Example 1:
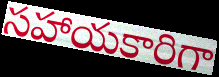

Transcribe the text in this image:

సహాయకారిగా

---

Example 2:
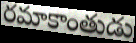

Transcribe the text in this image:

రమాకాంతుడు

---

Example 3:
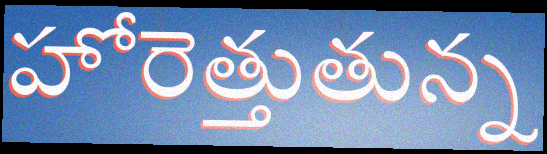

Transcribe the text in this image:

హోరెత్తుతున్న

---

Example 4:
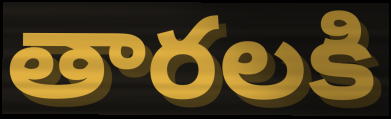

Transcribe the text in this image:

తారలకి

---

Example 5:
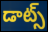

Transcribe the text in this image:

డాట్స్